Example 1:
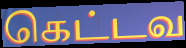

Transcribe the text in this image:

கெட்டவ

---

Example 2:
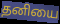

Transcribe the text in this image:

தனியை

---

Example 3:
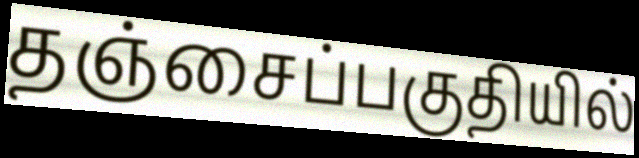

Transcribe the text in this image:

தஞ்சைப்பகுதியில்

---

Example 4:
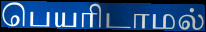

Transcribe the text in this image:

பெயரிடாமல்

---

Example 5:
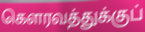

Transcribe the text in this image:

கௌரவத்துக்குப்